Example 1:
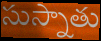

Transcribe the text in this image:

సుస్నాతు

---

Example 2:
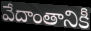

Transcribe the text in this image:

వేదాంతానికీ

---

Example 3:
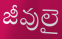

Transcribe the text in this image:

జీవులై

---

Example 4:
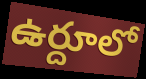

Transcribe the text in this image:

ఉర్దూలో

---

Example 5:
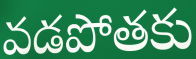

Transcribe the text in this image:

వడపోతకు